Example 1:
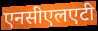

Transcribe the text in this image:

एनसीएलएटी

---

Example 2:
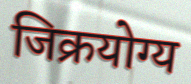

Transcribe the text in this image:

जिक्रयोग्य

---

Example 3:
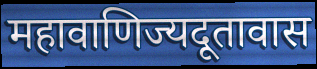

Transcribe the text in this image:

महावाणिज्यदूतावास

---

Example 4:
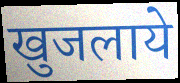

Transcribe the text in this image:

खुजलाये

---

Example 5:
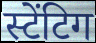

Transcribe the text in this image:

स्टेंटिग